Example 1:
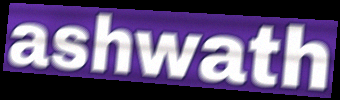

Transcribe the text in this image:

ashwath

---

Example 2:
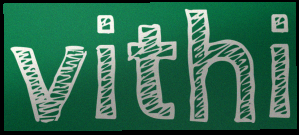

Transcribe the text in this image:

vithi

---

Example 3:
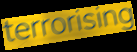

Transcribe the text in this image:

terrorising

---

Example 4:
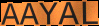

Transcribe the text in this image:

AAYAL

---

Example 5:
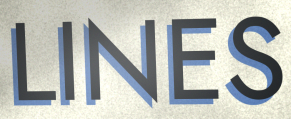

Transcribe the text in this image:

LINES